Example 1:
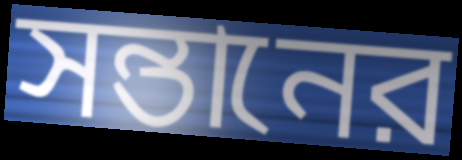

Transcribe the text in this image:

সন্তানের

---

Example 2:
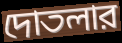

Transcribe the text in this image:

দোতলার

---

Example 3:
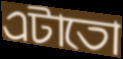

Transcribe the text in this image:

এটাতো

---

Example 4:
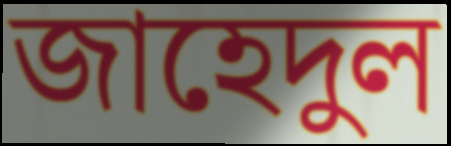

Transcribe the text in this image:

জাহেদুল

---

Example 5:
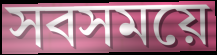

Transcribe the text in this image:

সবসময়ে